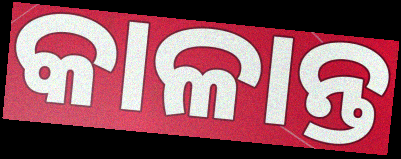
କାଳାନ୍ତ